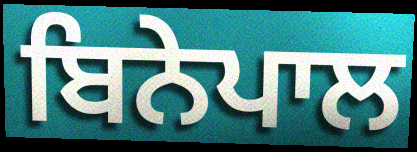
ਬਿਨੇਪਾਲ